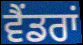
ਵੈਂਡਰਾਂ